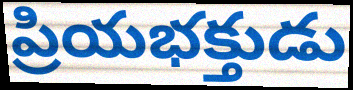
ప్రియభక్తుడు